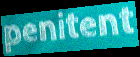
penitent